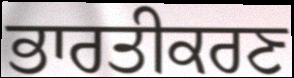
ਭਾਰਤੀਕਰਣ